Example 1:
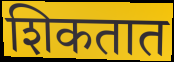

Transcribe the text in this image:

शिकतात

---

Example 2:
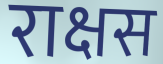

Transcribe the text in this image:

राक्षस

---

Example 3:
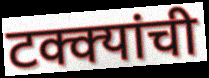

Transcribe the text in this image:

टक्क्यांची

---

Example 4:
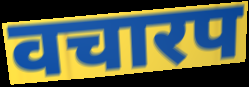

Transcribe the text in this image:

वचारप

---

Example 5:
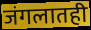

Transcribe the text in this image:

जंगलातही